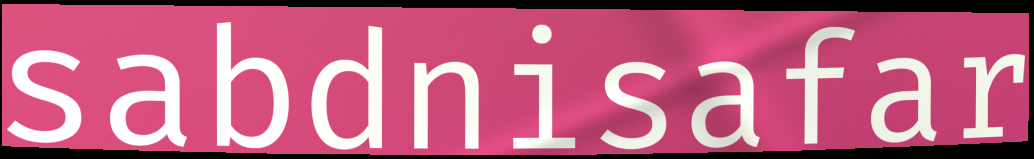
sabdnisafar